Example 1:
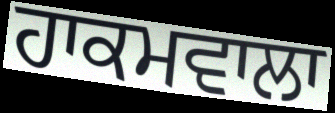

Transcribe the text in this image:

ਹਾਕਮਵਾਲਾ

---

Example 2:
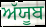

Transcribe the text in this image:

ਅੱਯੂਬ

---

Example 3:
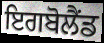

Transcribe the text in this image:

ਇਗਬੋਲੈਂਡ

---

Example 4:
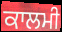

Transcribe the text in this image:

ਕਾਲਮੀ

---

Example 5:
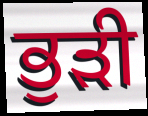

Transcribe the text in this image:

ਭੁੜੀ